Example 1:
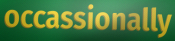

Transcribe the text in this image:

occassionally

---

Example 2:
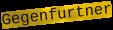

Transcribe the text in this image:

Gegenfurtner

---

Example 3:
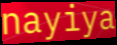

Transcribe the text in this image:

nayiya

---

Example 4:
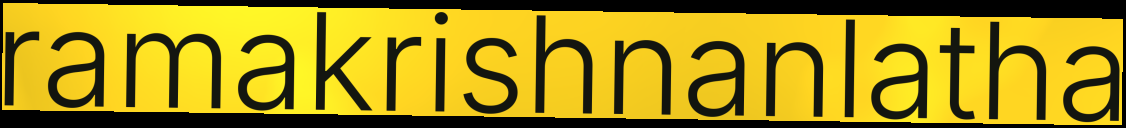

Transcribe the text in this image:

ramakrishnanlatha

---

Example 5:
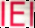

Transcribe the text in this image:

IEI